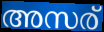
അസര്